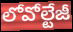
లోవోల్టేజీ